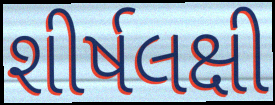
શીર્ષલક્ષી